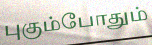
புகும்போதும்